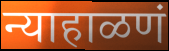
न्याहाळणं